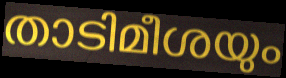
താടിമീശയും